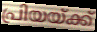
പ്രിയയ്ക്ക്